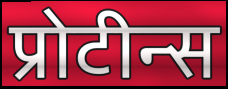
प्रोटीन्स